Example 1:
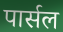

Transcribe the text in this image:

पार्सल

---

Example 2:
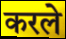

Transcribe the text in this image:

करले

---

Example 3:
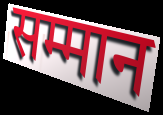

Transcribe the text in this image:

सम्‍मान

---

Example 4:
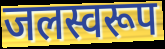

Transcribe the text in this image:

जलस्वरूप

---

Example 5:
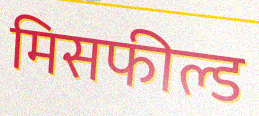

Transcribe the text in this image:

मिसफील्ड